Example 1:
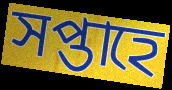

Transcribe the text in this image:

সপ্তাহে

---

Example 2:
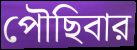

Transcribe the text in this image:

পৌছিবার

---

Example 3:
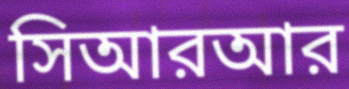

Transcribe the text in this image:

সিআরআর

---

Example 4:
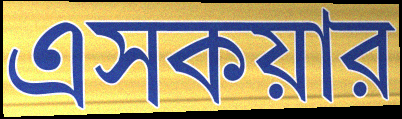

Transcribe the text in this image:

এসকয়ার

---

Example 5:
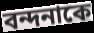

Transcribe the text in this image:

বন্দনাকে